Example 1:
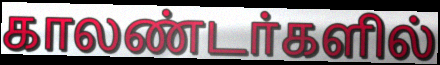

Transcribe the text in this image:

காலண்டர்களில்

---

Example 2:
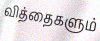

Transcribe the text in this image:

வித்தைகளும்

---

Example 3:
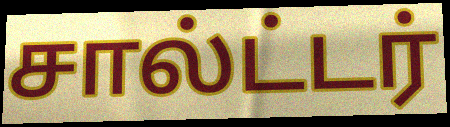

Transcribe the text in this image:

சால்ட்டர்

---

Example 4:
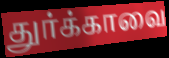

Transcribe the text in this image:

துர்க்காவை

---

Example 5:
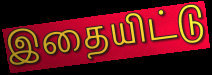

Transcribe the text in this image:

இதையிட்டு